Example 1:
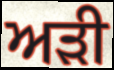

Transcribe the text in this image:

ਅੜੀ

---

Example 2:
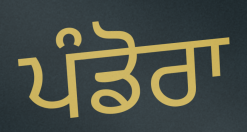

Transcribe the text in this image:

ਪੰਡੋਰਾ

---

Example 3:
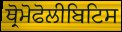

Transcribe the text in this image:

ਥ੍ਰੋਮੋਫੋਲੀਬਿਟਿਸ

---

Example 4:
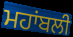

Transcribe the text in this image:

ਮਹਾਂਬਲੀ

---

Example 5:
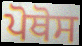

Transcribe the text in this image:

ਪੋਥੋਸ